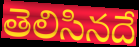
తెలిసినదే